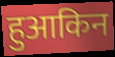
हुआकिन